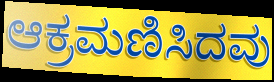
ಆಕ್ರಮಣಿಸಿದವು